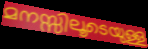
മനസ്സിലൂടെയുള്ള